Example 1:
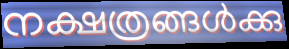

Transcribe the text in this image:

നക്ഷത്രങ്ങൾക്കു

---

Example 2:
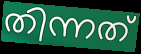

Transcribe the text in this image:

തിന്നത്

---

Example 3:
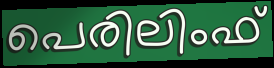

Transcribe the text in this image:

പെരിലിംഫ്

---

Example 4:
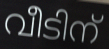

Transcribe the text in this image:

വീടിന്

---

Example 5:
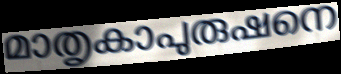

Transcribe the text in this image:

മാതൃകാപുരുഷനെ